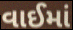
વાઈમાં